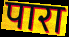
पारा